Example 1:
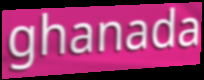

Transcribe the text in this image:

ghanada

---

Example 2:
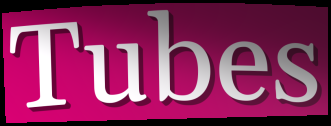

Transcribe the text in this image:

Tubes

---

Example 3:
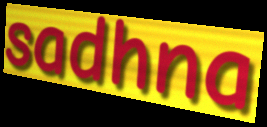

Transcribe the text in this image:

sadhna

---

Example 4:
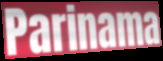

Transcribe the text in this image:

Parinama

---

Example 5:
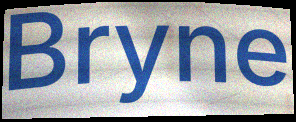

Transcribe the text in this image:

Bryne